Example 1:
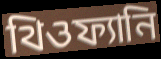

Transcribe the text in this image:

থিওফ্যানি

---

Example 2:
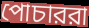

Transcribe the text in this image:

পোচাররা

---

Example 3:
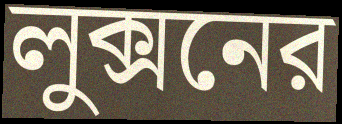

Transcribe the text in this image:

লুক্সনের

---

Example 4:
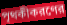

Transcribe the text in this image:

পৃথকীকরণের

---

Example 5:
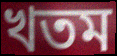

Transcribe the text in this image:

খতম